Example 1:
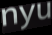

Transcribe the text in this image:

nyu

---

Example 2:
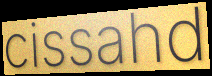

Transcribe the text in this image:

cissahd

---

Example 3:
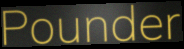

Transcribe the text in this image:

Pounder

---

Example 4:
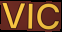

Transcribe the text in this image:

VIC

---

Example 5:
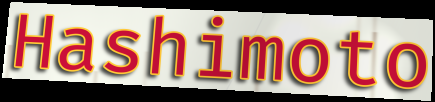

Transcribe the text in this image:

Hashimoto